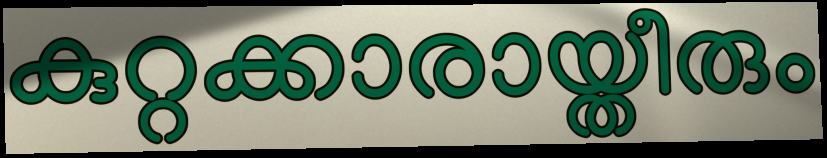
കുറ്റക്കാരായ്തീരും